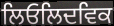
ਲਿਓਲਿਦਵਿਕ